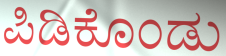
ಪಿಡಿಕೊಂಡು